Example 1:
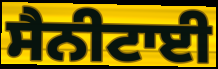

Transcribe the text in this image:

ਸੈਨੀਟਾਈ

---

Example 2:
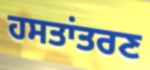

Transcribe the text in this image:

ਹਸਤਾਂਤਰਣ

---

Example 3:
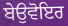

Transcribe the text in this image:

ਬੇਉਵੋਇਰ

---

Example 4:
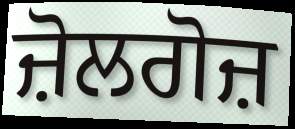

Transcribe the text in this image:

ਜ਼ੋਲਗੋਜ਼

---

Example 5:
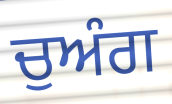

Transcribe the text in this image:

ਚੁਅੰਗ